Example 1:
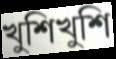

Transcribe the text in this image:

খুশিখুশি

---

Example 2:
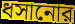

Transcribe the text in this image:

ধসানোর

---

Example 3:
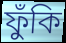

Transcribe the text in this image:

ফুঁকি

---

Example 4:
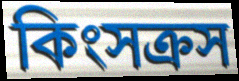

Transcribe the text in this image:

কিংসক্রস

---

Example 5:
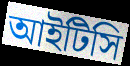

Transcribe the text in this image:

আইটিসি